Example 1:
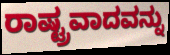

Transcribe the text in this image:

ರಾಷ್ಟ್ರವಾದವನ್ನು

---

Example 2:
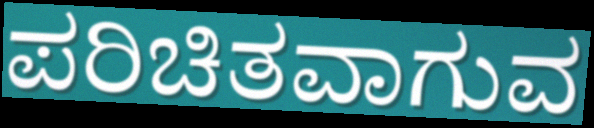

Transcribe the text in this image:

ಪರಿಚಿತವಾಗುವ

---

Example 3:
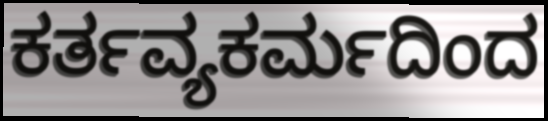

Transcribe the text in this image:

ಕರ್ತವ್ಯಕರ್ಮದಿಂದ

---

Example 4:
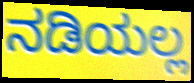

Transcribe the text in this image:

ನಡಿಯಲ್ಲ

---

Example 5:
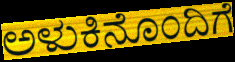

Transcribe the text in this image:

ಅಳುಕಿನೊಂದಿಗೆ